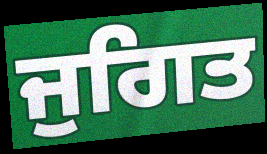
ਜੁਗਿਤ